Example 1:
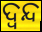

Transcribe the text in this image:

ଦ୍ଵନ୍ଦ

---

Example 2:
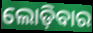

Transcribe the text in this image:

ଲୋଡ଼ିବାର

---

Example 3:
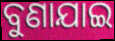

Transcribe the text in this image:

ବୁଣାଯାଇ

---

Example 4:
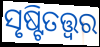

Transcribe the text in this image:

ସୃଷ୍ଟିତତ୍ତ୍ୱର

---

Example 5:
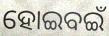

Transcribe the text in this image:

ହୋଇବଇଁ